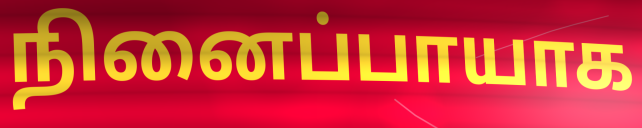
நினைப்பாயாக